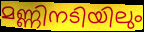
മണ്ണിനടിയിലും